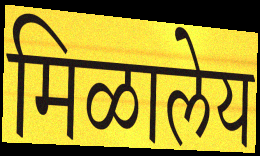
मिळालेय